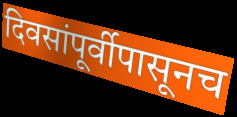
दिवसांपूर्वीपासूनच